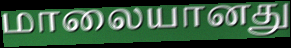
மாலையானது